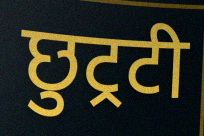
छुट्रटी